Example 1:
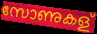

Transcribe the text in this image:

സോണുകള്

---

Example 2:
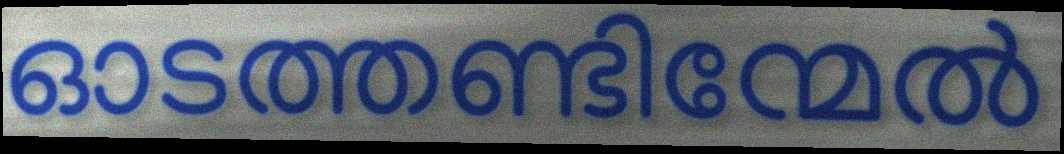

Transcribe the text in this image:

ഓടത്തണ്ടിന്മേൽ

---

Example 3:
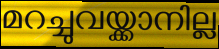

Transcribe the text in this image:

മറച്ചുവയ്ക്കാനില്ല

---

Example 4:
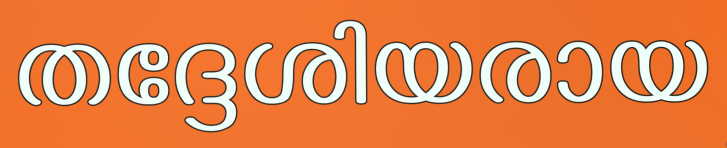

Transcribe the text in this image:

തദ്ദേശിയരായ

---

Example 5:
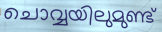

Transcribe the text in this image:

ചൊവ്വയിലുമുണ്ട്